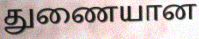
துணையான